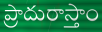
ప్రాదురాస్తాం